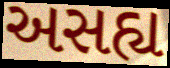
અસહ્ય